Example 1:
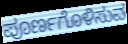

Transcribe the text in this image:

ಪೂರ್ಣಗೊಳಿಸುವ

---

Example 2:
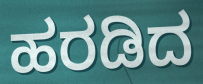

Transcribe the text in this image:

ಹರಡಿದ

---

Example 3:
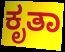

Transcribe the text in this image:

ಕೃತಾ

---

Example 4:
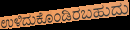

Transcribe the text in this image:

ಉಳಿದುಕೊಂಡಿರಬಹುದು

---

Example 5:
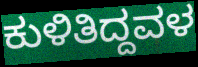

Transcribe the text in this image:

ಕುಳಿತಿದ್ದವಳ